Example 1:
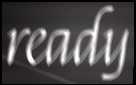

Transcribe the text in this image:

ready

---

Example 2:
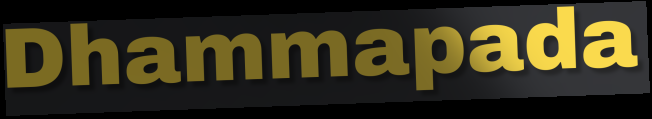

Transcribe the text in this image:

Dhammapada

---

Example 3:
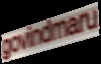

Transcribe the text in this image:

govindmaru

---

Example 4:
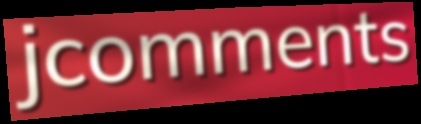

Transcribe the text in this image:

jcomments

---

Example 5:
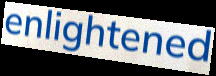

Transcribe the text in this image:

enlightened